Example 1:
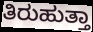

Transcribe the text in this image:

ತಿರುಹುತ್ತಾ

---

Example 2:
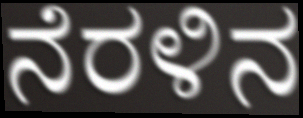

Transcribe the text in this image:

ನೆರಳಿನ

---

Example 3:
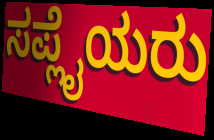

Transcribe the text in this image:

ಸಪ್ಲೈಯರು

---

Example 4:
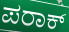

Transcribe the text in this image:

ಪರಾಕ್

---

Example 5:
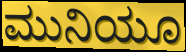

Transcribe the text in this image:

ಮುನಿಯೂ